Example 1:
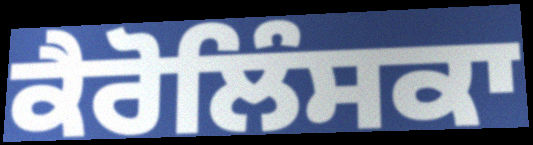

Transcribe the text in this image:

ਕੈਰੋਲਿੰਸਕਾ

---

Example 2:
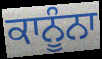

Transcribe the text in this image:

ਕਾਨੂੰਨਾ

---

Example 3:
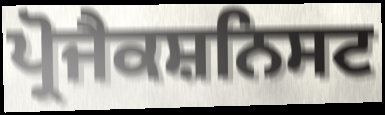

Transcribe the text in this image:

ਪ੍ਰੋਜੈਕਸ਼ਨਿਸਟ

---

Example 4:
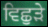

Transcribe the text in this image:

ਵਿਛੁੜੇ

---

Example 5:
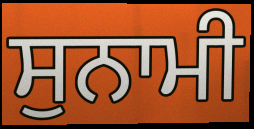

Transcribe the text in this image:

ਸੁਨਾਮੀ